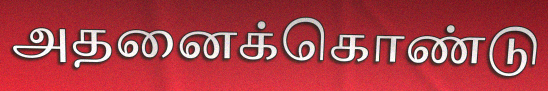
அதனைக்கொண்டு